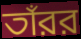
তাঁরর